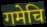
गमेचि